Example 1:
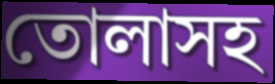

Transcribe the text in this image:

তোলাসহ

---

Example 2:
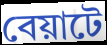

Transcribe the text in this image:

বেয়াটে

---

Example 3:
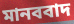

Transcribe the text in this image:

মানববাদ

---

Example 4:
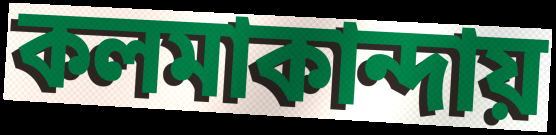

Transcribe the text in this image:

কলমাকান্দায়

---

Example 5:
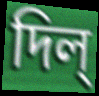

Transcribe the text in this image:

দিল্